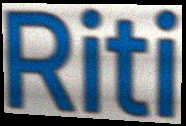
Riti